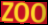
ZOO